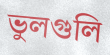
ভুলগুলি